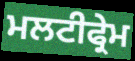
ਮਲਟੀਫ੍ਰੇਮ